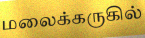
மலைக்கருகில்